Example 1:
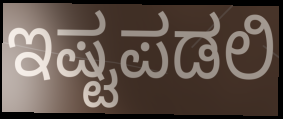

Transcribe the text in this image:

ಇಷ್ಟಪಡಲಿ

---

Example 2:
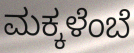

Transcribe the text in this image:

ಮಕ್ಕಳೆಂಬೆ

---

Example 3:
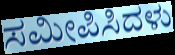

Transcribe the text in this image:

ಸಮೀಪಿಸಿದಳು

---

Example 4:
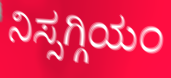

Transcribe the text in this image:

ನಿಸ್ಸಗ್ಗಿಯಂ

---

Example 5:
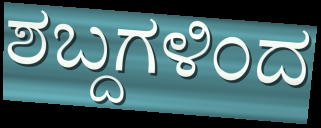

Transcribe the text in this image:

ಶಬ್ದಗಳಿಂದ